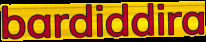
bardiddira